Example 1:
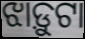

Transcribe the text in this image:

ଝାଡ଼ୁଟା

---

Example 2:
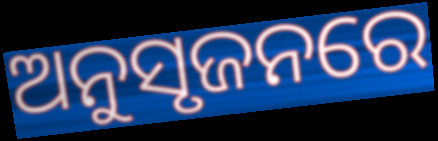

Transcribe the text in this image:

ଅନୁସୃଜନରେ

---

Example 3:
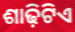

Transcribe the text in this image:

ଶାଢ଼ିଟିଏ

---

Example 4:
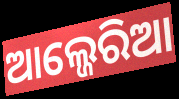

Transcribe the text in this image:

ଆଲ୍ଜେରିଆ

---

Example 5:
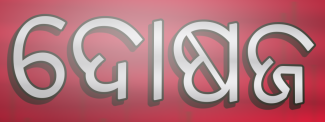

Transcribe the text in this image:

ଦୋଷଜ